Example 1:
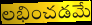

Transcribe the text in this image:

లభించడమే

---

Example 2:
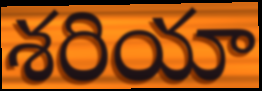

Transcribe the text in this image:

శరియా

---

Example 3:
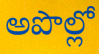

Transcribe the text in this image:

అపొల్లో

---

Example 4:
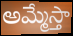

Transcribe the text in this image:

అమ్మేస్తా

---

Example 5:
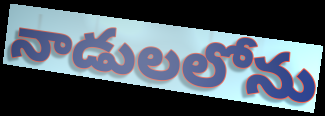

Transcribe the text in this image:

నాడులలోను